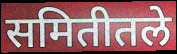
समितीतले